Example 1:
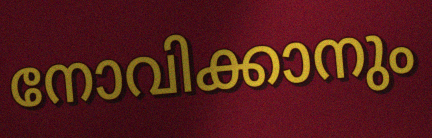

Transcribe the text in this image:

നോവിക്കാനും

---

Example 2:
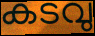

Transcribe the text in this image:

കടവു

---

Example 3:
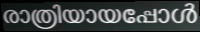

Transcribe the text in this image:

രാത്രിയായപ്പോൾ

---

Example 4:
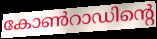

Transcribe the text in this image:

കോൺറാഡിന്റെ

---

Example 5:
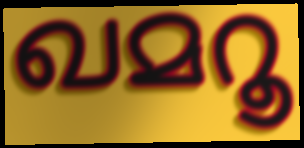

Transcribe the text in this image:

ഖമറൂ